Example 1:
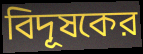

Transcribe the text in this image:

বিদূষকের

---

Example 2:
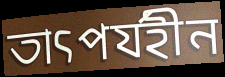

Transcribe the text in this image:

তাৎপর্যহীন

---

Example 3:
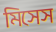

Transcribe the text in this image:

মিসেস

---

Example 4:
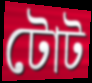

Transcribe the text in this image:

টোট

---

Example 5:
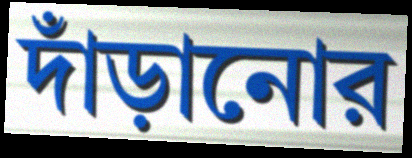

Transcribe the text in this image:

দাঁড়ানোর